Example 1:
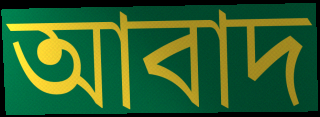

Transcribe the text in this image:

আবাদ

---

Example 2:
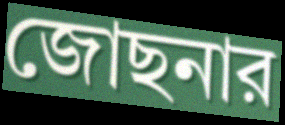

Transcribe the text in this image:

জোছনার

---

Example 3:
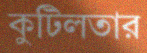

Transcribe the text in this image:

কুটিলতার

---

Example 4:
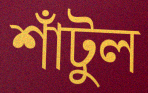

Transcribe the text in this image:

শাঁটুল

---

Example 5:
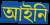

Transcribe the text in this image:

আইনি